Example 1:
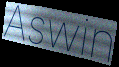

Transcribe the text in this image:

Aswin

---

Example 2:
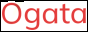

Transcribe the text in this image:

Ogata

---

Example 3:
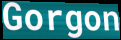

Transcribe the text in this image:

Gorgon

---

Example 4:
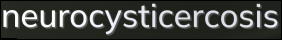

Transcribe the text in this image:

neurocysticercosis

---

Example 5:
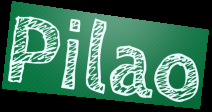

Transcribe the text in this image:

Pilao